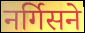
नर्गिसने